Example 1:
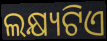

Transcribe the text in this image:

ଲକ୍ଷ୍ୟଟିଏ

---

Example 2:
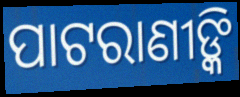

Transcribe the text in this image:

ପାଟରାଣୀଙ୍କି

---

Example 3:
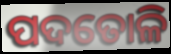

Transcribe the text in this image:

ପଦତୋଳି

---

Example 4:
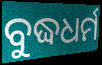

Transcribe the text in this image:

ବୁଦ୍ଧଧର୍ମ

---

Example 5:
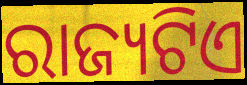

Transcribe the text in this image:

ରାଜ୍ୟଟିଏ